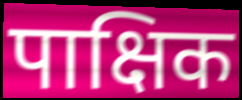
पाक्षिक